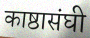
काष्ठासंघी